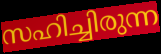
സഹിച്ചിരുന്ന